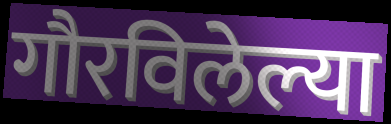
गौरविलेल्या